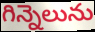
గిన్నెలును